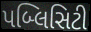
પબ્લિસિટી